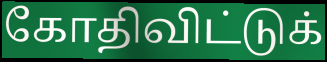
கோதிவிட்டுக்